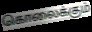
கொலைக்கும்